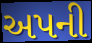
અપની